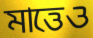
মাত্তেও